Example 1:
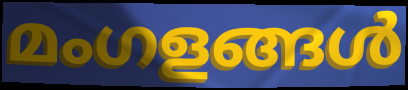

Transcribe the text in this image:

മംഗളങ്ങൾ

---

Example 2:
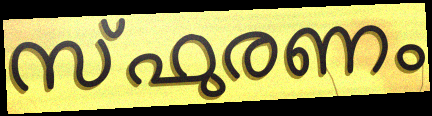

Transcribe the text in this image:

സ്ഫുരണം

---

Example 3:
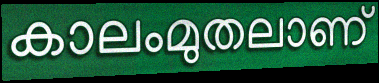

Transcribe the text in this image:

കാലംമുതലാണ്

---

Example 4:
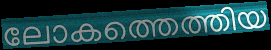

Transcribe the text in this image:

ലോകത്തെത്തിയ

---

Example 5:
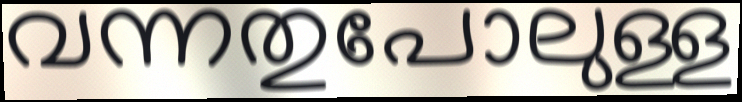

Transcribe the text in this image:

വന്നതുപോലുള്ള